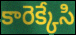
కారెక్కేసి